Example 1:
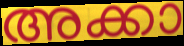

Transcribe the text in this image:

അക്കാ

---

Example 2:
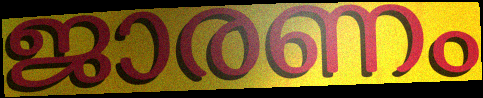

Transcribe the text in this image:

ജാരണം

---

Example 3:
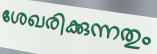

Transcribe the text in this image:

ശേഖരിക്കുന്നതും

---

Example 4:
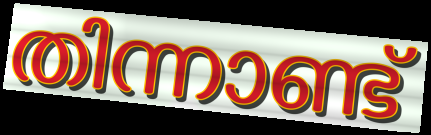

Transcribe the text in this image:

തിന്നാണ്ട്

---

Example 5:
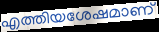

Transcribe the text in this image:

എത്തിയശേഷമാണ്